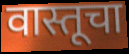
वास्तूचा